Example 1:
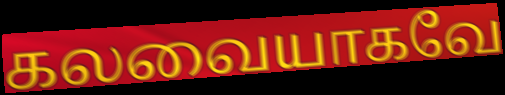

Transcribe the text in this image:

கலவையாகவே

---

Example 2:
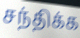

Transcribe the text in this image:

சந்திக்க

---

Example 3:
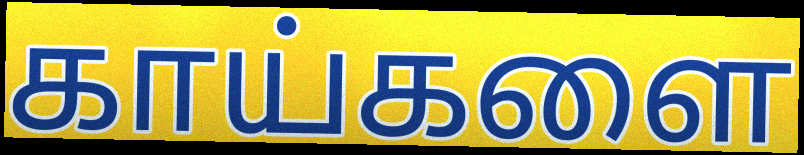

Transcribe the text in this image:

காய்களை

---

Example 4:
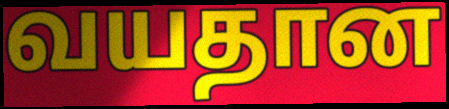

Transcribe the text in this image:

வயதான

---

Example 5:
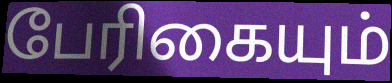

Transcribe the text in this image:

பேரிகையும்